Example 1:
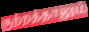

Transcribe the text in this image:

குற்றத்தாலும்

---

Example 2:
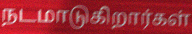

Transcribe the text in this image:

நடமாடுகிறார்கள்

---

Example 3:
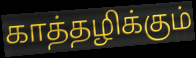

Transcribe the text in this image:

காத்தழிக்கும்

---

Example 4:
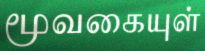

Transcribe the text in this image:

மூவகையுள்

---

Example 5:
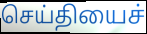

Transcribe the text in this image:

செய்தியைச்